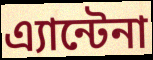
এ্যান্টেনা